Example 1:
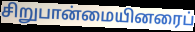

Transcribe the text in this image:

சிறுபான்மையினரைப்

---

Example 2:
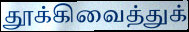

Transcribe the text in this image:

தூக்கிவைத்துக்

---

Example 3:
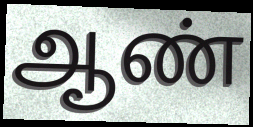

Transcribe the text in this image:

ஆண்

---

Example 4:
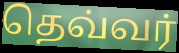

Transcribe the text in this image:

தெவ்வர்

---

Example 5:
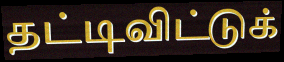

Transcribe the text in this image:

தட்டிவிட்டுக்